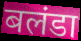
बलंडा